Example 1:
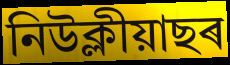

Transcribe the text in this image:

নিউক্লীয়াছৰ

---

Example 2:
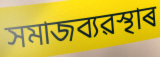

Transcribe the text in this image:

সমাজব্যৱস্থাৰ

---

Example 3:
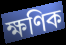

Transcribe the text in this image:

ক্ষণিক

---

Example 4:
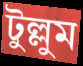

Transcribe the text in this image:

টুল্লুম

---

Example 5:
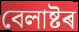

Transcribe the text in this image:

বেলাষ্টৰ